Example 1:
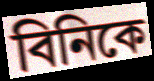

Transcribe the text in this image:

বিনিকে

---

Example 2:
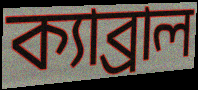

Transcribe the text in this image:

ক্যাব্রাল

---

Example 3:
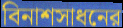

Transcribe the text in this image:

বিনাশসাধনের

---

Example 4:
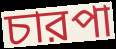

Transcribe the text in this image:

চারপা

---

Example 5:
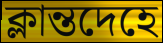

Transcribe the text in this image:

ক্লান্তদেহে